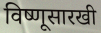
विष्णूसारखी